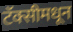
टॅक्सीमधून